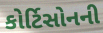
કોર્ટિસોનની